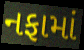
નફામાં